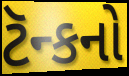
ટૅન્કનો